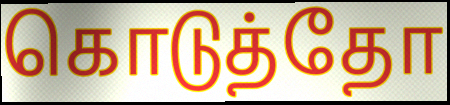
கொடுத்தோ